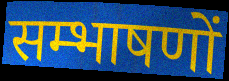
सम्भाषणों